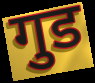
गुड